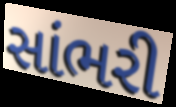
સાંભરી